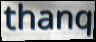
thanq